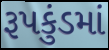
રૂપકુંડમાં